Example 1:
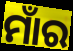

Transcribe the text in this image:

ମାଁର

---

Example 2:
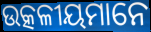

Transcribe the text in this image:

ଉତ୍କଳୀୟମାନେ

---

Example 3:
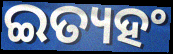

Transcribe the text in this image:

ଇତ୍ୟହଂ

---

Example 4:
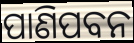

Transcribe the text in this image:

ପାଣିପବନ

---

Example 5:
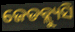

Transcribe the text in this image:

ଜେଡବ୍ଲ୍ୟୁସି